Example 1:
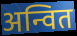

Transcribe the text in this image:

अन्वित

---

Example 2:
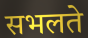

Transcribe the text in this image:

सभलते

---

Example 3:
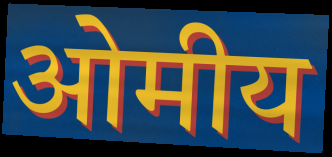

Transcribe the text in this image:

ओमीय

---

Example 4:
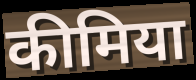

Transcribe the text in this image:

कीमिया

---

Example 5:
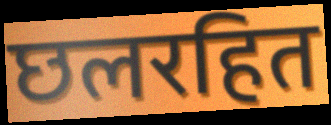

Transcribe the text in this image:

छलरहित